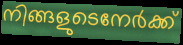
നിങ്ങളുടെനേർക്ക്